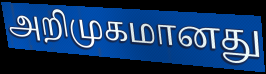
அறிமுகமானது